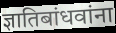
ज्ञातिबांधवांना